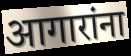
आगारांना